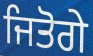
ਜਿਤੋਗੇ